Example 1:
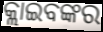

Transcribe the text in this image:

କ୍ଲାଇବଙ୍କର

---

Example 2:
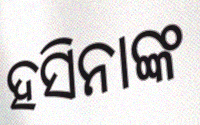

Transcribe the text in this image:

ହସିନାଙ୍କ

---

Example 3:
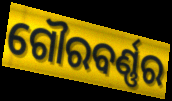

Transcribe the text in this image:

ଗୌରବର୍ଣ୍ଣର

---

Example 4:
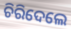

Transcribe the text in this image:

ଚିରିଦେଲେ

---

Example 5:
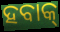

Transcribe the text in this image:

ହବାକ୍